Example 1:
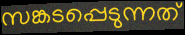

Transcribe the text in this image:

സങ്കടപ്പെടുന്നത്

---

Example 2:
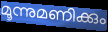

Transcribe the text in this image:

മൂന്നുമണിക്കും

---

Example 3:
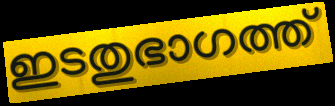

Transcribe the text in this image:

ഇടതുഭാഗത്ത്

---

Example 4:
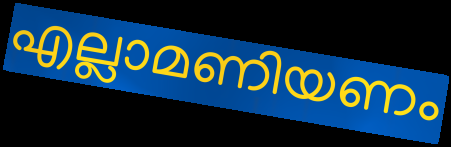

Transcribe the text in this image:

എല്ലാമണിയണം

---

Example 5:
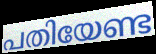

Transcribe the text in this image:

പതിയേണ്ട